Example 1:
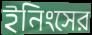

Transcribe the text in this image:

ইনিংসের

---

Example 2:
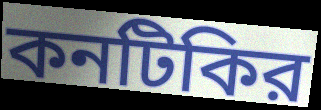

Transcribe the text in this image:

কনটিকির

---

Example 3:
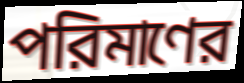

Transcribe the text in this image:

পরিমাণের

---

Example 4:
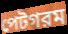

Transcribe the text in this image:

পেটগরম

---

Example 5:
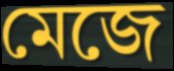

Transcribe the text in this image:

মেজে